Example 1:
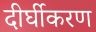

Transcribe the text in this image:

दीर्घीकरण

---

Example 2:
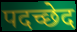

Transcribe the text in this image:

पदच्छेद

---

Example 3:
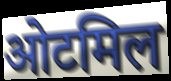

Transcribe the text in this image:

ओटमिल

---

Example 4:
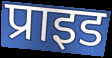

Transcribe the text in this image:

प्राइड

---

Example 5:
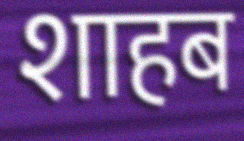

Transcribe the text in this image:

शाहब